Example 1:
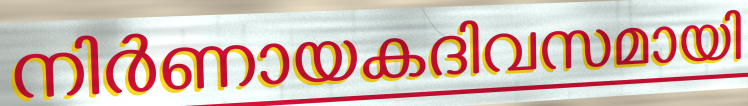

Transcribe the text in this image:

നിർണായകദിവസമായി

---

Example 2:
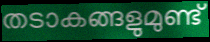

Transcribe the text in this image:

തടാകങ്ങളുമുണ്ട്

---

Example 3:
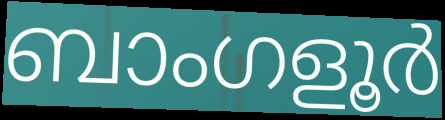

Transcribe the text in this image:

ബാംഗളൂർ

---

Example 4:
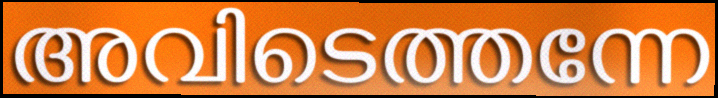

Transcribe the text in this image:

അവിടെത്തന്നേ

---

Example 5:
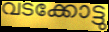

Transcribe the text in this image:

വടക്കോട്ടു